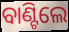
ବାଣ୍ଟିଲେ